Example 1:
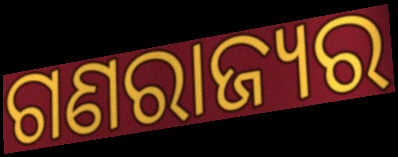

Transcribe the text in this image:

ଗଣରାଜ୍ୟର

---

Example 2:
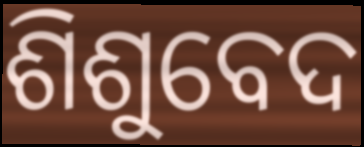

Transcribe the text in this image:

ଶିଶୁବେଦ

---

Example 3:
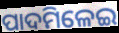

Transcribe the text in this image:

ପାଦମିଳେଇ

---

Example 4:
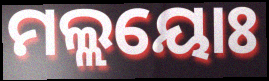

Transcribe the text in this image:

ମଲ୍ଲୟୋଃ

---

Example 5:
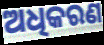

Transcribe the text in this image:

ଅଧିକରଣ